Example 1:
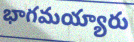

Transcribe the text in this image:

భాగమయ్యారు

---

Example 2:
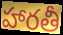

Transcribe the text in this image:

హారతీ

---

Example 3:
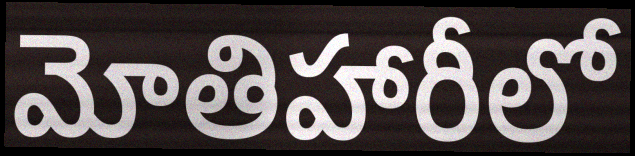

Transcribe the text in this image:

మోతిహారీలో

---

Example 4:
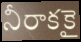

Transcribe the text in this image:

నీరాకకై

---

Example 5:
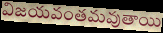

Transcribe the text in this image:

విజయవంతమవుతాయి